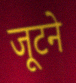
जूटने